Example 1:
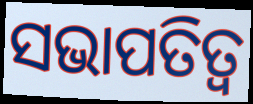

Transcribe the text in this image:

ସଭାପତିତ୍ଵ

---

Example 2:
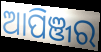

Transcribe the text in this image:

ଆପିଞ୍ଜର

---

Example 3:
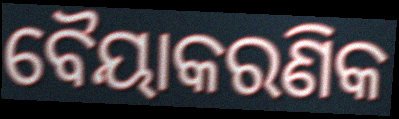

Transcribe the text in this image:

ବୈୟାକରଣିକ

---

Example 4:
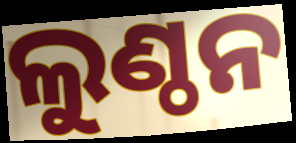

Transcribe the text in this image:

ଲୁଣ୍ଠନ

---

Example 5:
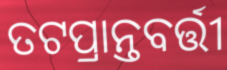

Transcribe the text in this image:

ତଟପ୍ରାନ୍ତବର୍ତ୍ତୀ